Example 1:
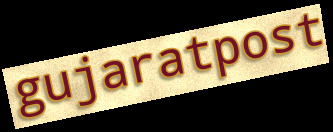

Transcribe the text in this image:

gujaratpost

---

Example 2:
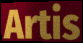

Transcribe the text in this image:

Artis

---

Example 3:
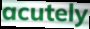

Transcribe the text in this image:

acutely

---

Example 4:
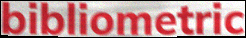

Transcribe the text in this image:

bibliometric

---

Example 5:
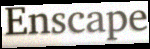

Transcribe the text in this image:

Enscape